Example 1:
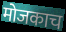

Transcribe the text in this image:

मोजकाच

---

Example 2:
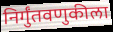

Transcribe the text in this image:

निर्गुंतवणुकीला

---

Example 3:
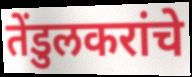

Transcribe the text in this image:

तेंडुलकरांचे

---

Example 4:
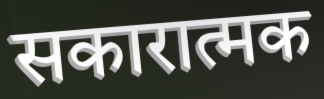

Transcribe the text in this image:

सकारात्‍मक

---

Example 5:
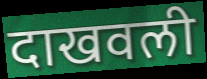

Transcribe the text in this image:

दाखवली